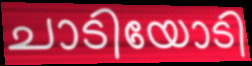
ചാടിയോടി